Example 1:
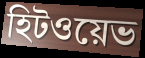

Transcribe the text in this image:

হিটওয়েভ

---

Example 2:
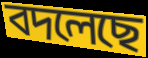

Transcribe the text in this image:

বদলেছে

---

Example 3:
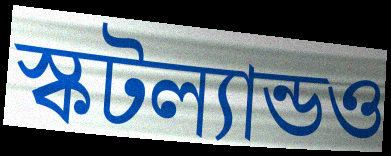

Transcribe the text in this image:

স্কটল্যান্ডও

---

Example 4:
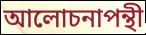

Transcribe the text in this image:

আলোচনাপন্থী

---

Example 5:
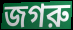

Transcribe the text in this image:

জগরু